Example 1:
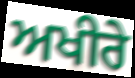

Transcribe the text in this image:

ਅਖੀਰੇ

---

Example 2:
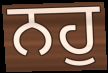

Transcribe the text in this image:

ਨਹੁ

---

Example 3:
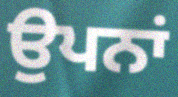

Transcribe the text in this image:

ਉਪਨਾਂ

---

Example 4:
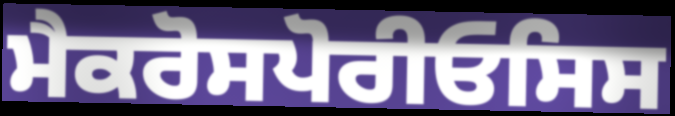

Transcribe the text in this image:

ਮੈਕਰੋਸਪੋਰੀਓਸਿਸ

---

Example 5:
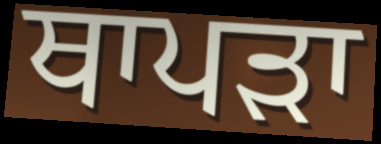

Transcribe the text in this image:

ਥਾਪੜਾ